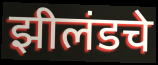
झीलंडचे